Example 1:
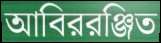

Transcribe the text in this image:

আবিররঞ্জিত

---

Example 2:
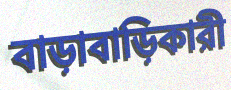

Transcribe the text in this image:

বাড়াবাড়িকারী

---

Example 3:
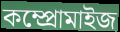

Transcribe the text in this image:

কম্প্রোমাইজ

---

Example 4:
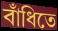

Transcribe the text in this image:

বাঁধিতে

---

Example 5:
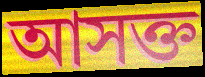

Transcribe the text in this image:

আসক্ত